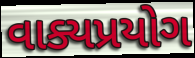
વાક્યપ્રયોગ